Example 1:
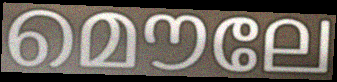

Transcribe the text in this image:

മൌലേ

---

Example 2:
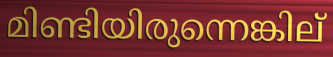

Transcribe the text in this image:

മിണ്ടിയിരുന്നെങ്കില്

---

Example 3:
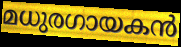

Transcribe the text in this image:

മധുരഗായകൻ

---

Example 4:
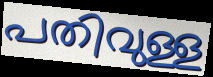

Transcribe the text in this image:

പതിവുള്ള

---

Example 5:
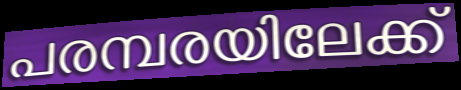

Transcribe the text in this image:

പരമ്പരയിലേക്ക്